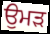
ਉਮੜ